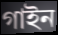
গাইন